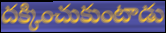
దక్కించుకుంటాడు